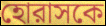
হোরাসকে